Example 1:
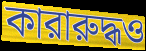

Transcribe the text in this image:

কারারুদ্ধও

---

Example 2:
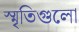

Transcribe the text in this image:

স্মৃতিগুলো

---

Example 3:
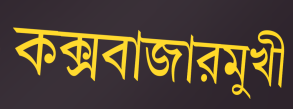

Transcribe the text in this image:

কক্সবাজারমুখী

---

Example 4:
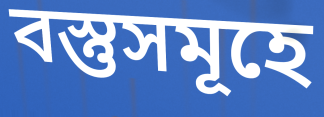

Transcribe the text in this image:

বস্তুসমূহে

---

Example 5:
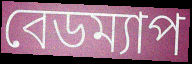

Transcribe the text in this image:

বেডম্যাপ